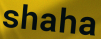
shaha